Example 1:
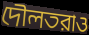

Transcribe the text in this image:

দৌলতরাও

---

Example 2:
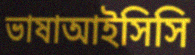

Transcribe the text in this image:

ভাষাআইসিসি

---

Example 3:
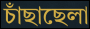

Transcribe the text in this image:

চাঁছাছেলা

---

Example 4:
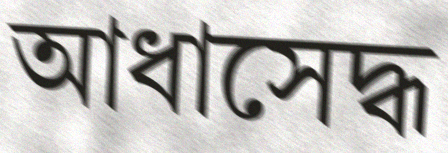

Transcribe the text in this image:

আধাসেদ্ধ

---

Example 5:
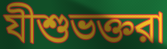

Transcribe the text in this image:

যীশুভক্তরা